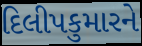
દિલીપકુમારને